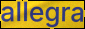
allegra